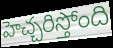
హెచ్చరిస్తోంది